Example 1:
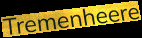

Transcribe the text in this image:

Tremenheere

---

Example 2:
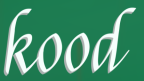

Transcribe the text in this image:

kood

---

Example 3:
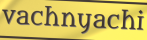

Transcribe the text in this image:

vachnyachi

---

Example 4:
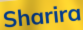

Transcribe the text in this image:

Sharira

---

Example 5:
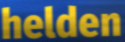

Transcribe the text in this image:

helden